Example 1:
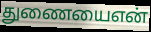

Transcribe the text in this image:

துணையைஎன்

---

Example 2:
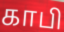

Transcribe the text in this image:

காபி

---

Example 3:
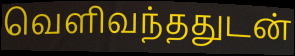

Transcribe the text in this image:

வெளிவந்ததுடன்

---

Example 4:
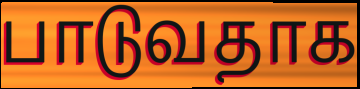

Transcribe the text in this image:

பாடுவதாக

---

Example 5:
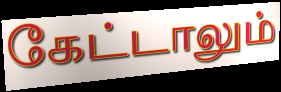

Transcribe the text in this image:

கேட்டாலும்